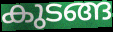
കുടങ്ങ